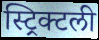
स्ट्रिक्टली